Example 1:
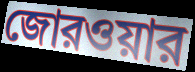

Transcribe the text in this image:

জোরওয়ার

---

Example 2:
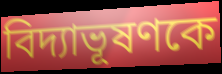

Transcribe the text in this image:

বিদ্যাভূষণকে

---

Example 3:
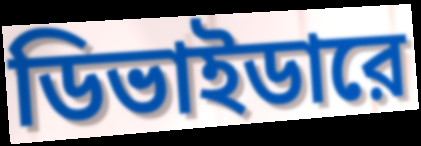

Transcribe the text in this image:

ডিভাইডারে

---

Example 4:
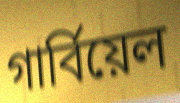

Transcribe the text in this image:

গার্বিয়েল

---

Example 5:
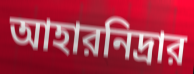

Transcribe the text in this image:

আহারনিদ্রার